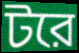
টরে